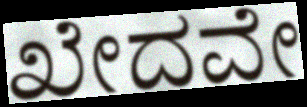
ಖೇದವೇ